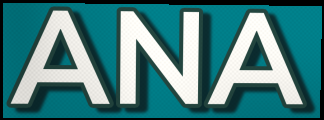
ANA